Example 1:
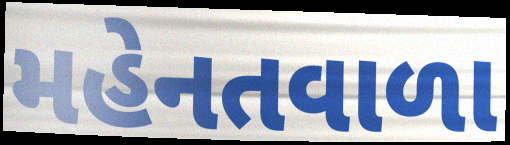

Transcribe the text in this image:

મહેનતવાળા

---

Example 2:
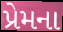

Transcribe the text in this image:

પ્રેમના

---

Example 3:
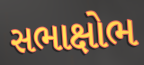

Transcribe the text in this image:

સભાક્ષોભ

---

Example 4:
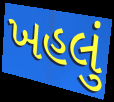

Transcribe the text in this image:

ખહલું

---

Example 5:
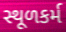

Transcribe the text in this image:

સ્થૂળકર્મ